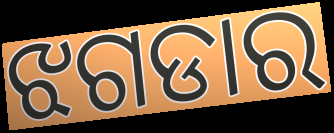
ଝଗଡାର